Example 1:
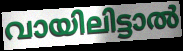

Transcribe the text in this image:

വായിലിട്ടാൽ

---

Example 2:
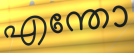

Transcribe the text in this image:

എന്തോ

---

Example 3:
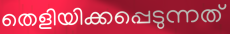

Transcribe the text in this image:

തെളിയിക്കപ്പെടുന്നത്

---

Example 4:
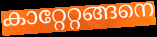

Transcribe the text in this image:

കാറ്റേറ്റങ്ങനെ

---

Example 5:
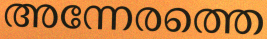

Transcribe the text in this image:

അന്നേരത്തെ